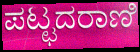
ಪಟ್ಟದರಾಣಿ